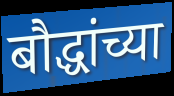
बौद्धांच्या